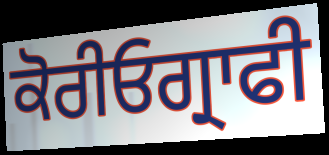
ਕੋਰੀਓਗ੍ਰਾਫੀ